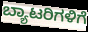
ಬ್ಯಾಟರಿಗಳಿಗೆ